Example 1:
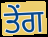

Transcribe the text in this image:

ਤੇਂਗ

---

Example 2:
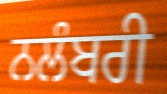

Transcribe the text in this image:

ਨਲੰਬਰੀ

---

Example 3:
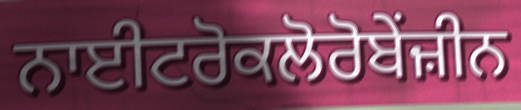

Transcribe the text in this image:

ਨਾਈਟਰੋਕਲੋਰੋਬੇਂਜ਼ੀਨ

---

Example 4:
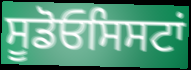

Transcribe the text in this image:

ਸੂਡੋਓਸਿਸਟਾਂ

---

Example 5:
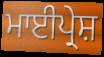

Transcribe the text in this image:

ਮਾਈਪ੍ਰੇਸ਼